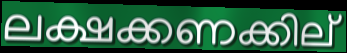
ലക്ഷക്കണക്കില്